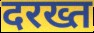
दरख्त